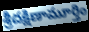
శ్రీదక్షిణామూర్తిం